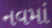
નવમાં